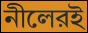
নীলেরই